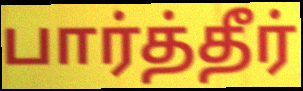
பார்த்தீர்